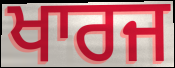
ਖਾਰਜ